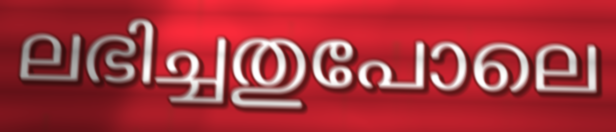
ലഭിച്ചതുപോലെ